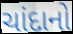
ચાંદાનો